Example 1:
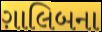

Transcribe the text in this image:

ગ઼ાલિબના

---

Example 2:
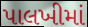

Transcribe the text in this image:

પાલખીમાં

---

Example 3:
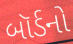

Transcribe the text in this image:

બૉર્ડનો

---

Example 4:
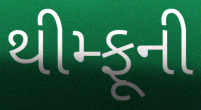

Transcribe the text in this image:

થીમ્ફૂની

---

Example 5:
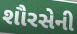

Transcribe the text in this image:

શૌરસેની